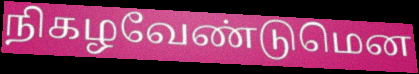
நிகழவேண்டுமென